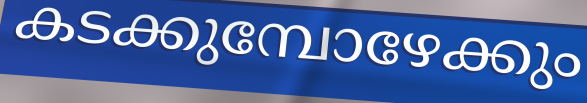
കടക്കുമ്പോഴേക്കും